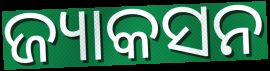
ଜ୍ୟାକସନ